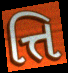
ત્તિ